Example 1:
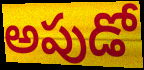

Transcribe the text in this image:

అపుడో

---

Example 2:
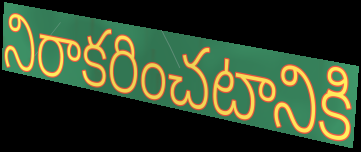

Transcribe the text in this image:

నిరాకరించటానికి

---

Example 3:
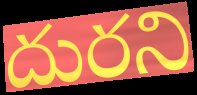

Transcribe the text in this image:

దురని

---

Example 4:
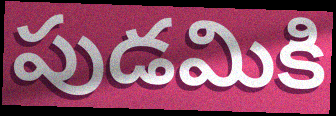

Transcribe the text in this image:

పుడమికి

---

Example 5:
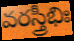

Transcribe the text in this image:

వరస్త్రీభిః